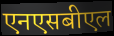
एनएसबीएल